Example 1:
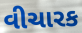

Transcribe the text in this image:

વીચારક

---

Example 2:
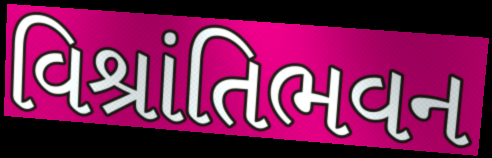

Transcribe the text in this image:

વિશ્રાંતિભવન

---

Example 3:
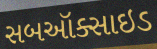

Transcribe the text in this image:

સબઑક્સાઇડ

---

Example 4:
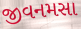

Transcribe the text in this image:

જીવનમસા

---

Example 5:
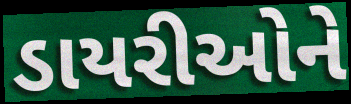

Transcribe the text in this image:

ડાયરીઓને